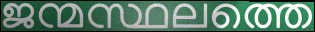
ജന്മസ്ഥലത്തെ